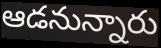
ఆడనున్నారు